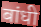
बांधी